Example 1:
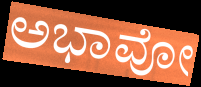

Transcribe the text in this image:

ಅಭಾವೋ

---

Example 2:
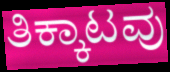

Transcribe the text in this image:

ತಿಕ್ಕಾಟವು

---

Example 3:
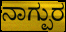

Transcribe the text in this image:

ನಾಗ್ಪುರ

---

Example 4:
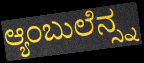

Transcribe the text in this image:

ಆ್ಯಂಬುಲೆನ್ಸ್ನ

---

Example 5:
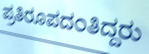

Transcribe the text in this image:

ಪ್ರತಿರೂಪದಂತಿದ್ದರು